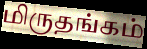
மிருதங்கம்